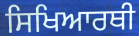
ਸਿਖਿਆਰਥੀ